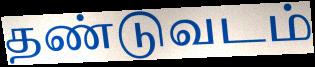
தண்டுவடம்